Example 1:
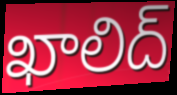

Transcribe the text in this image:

ఖాలిద్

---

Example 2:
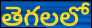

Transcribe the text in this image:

తెగలలో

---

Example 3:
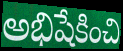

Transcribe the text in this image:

అభిషేకించి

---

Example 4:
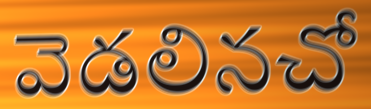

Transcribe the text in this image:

వెడలినచో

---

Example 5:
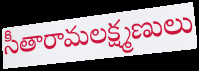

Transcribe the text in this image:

సీతారామలక్ష్మణులు